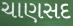
ચાણસદ